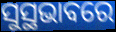
ସୁସ୍ଥଭାବରେ